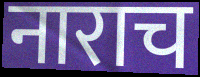
नाराच